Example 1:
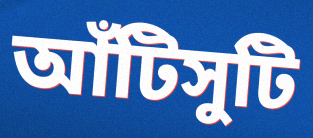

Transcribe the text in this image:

আঁটিসুটি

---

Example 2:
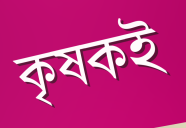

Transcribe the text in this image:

কৃষকই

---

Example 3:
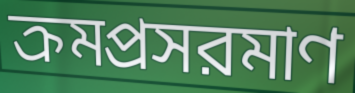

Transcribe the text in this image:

ক্রমপ্রসরমাণ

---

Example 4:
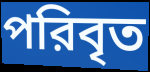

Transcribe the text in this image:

পরিবৃত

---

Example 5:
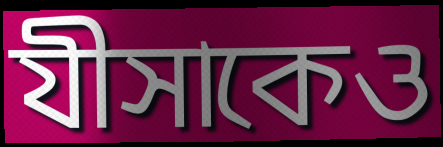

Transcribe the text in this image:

যীসাকেও